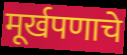
मूर्खपणाचे